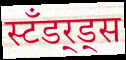
स्टँडर्ड्स